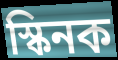
স্কিনক